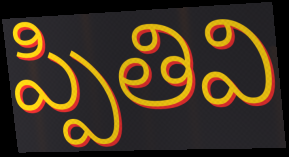
ప్పితివి